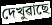
দেখুৱাছে